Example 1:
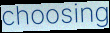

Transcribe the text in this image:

choosing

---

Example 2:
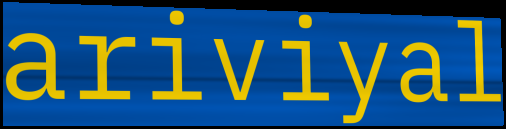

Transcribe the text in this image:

ariviyal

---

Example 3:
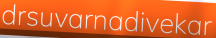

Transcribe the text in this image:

drsuvarnadivekar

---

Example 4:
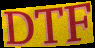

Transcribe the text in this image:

DTF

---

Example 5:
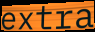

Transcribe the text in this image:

extra